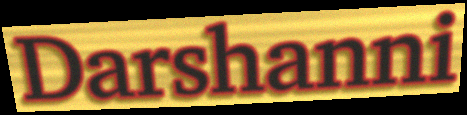
Darshanni